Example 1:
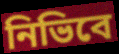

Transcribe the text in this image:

নিভিবে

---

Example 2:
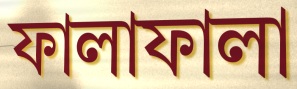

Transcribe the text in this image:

ফালাফালা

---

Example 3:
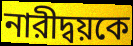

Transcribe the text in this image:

নারীদ্বয়কে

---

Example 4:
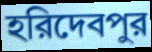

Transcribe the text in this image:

হরিদেবপুর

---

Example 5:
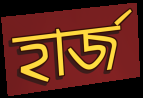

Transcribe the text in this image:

হার্জ